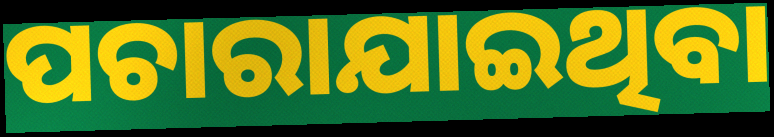
ପଚାରାଯାଇଥିବା